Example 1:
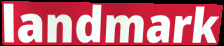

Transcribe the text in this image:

landmark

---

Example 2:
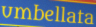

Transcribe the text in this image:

umbellata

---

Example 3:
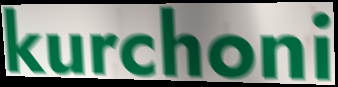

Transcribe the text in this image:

kurchoni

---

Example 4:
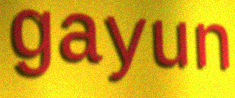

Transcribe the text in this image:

gayun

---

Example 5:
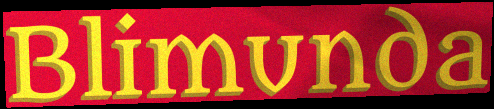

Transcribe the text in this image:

Blimunda